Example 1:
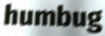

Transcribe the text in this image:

humbug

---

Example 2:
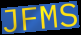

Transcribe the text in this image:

JFMS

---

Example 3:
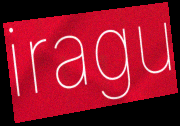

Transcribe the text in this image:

iragu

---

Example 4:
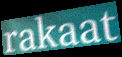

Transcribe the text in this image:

rakaat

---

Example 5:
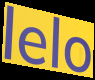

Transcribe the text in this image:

lelo